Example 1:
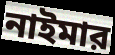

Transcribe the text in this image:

নাইমার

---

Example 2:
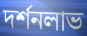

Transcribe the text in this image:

দর্শনলাভ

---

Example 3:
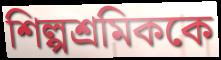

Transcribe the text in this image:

শিল্পশ্রমিককে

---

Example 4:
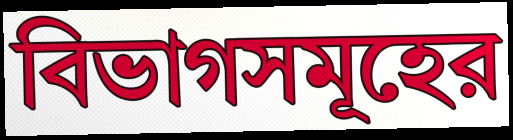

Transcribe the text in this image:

বিভাগসমূহের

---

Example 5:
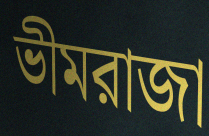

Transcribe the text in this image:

ভীমরাজা